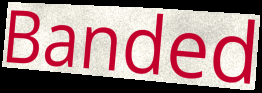
Banded